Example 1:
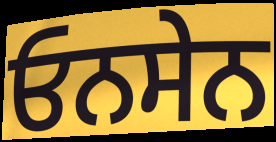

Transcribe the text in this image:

ਓਨਸੇਨ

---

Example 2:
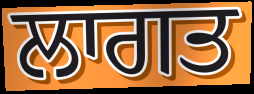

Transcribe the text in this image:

ਲਾਗਤ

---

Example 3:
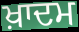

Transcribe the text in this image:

ਖ਼ਾਦਮ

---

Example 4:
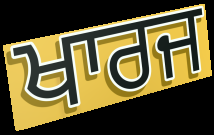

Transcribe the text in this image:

ਖਾਰਜ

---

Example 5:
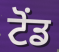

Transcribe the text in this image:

ਟੋਂਡ